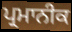
ਪ੍ਰਮਾਨੀਕ